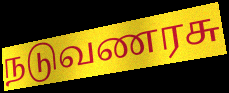
நடுவணரசு